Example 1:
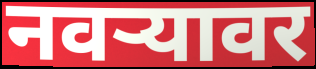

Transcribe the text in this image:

नवर्‍यावर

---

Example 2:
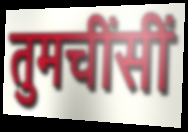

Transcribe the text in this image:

तुमचींसीं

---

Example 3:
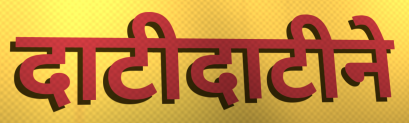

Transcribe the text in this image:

दाटीदाटीने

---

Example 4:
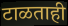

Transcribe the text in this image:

टाळताही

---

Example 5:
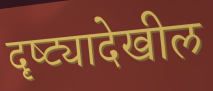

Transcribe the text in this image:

दृष्ट्यादेखील